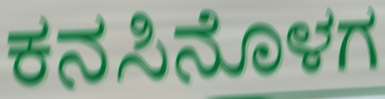
ಕನಸಿನೊಳಗ